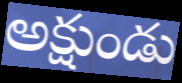
అక్షుండు